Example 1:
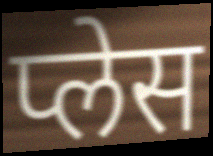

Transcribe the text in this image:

प्लेस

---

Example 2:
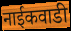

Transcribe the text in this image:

नाईकवाडी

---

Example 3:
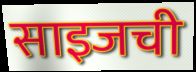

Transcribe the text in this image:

साइजची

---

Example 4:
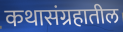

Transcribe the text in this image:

कथासंग्रहातील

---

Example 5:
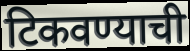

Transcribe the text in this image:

टिकवण्याची